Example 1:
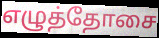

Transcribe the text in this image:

எழுத்தோசை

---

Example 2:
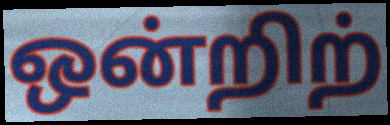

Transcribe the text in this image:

ஒன்றிற்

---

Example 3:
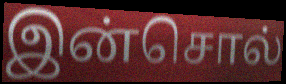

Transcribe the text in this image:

இன்சொல்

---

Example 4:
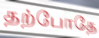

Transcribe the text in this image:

தற்போதே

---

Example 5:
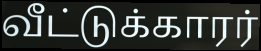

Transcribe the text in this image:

வீட்டுக்காரர்